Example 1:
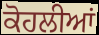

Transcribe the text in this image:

ਕੋਹਲੀਆਂ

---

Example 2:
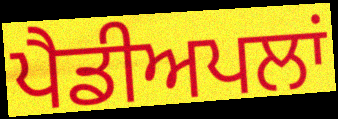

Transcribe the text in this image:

ਪੈਡੀਅਪਲਾਂ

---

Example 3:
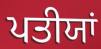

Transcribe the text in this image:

ਪਤੀਯਾਂ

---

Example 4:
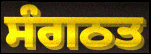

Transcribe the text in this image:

ਸੰਗਠਤ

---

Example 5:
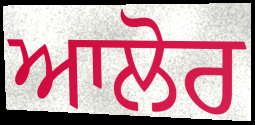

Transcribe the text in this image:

ਆਲੋਰ